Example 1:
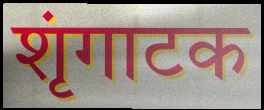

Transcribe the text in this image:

शृंगाटक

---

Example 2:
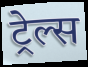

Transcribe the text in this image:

ट्रेल्स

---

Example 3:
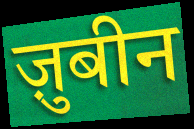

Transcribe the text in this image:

ज़ुबीन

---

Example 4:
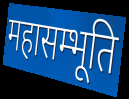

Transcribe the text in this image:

महासम्भूति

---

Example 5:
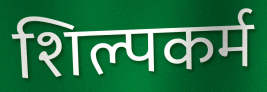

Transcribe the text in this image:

शिल्पकर्म